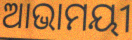
ଆଭାମୟୀ